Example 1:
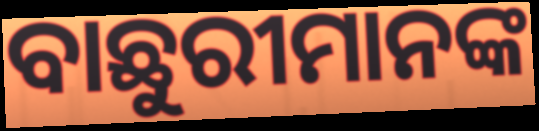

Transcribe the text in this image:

ବାଛୁରୀମାନଙ୍କ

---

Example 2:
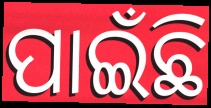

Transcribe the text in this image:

ପାଇଁଛି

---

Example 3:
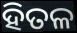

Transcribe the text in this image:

ହିତଳ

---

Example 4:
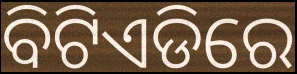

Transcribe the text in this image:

ବିଟିଏଡିରେ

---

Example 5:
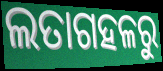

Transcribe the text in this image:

ଲତାଗହଳରୁ